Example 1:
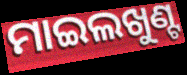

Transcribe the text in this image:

ମାଇଲଖୁଣ୍ଟ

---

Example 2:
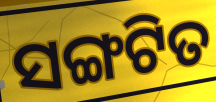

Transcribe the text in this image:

ସଙ୍ଗଟିତ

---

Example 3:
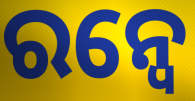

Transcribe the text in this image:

ରନ୍ୱେ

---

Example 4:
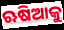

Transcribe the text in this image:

ଋଷିଆକୁ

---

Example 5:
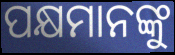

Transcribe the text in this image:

ପକ୍ଷମାନଙ୍କୁ